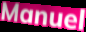
Manuel